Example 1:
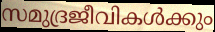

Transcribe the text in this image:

സമുദ്രജീവികൾക്കും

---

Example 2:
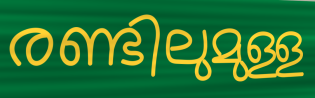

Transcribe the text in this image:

രണ്ടിലുമുള്ള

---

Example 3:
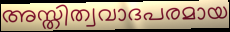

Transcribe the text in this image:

അസ്തിത്വവാദപരമായ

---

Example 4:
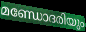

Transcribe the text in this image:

മണ്ഡോദരിയും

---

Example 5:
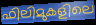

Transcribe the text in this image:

ഫിലിമുകളിലെ